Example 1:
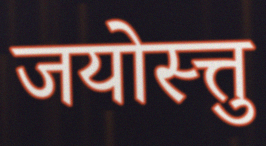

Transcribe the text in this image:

जयोस्त्तु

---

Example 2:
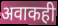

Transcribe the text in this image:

अवाकही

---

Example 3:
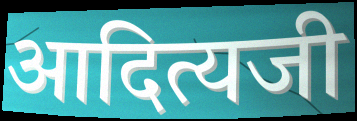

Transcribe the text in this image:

आदित्यजी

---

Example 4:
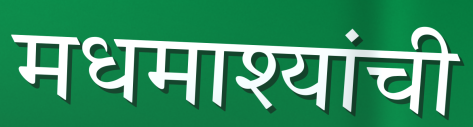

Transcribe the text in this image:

मधमाश्‍यांची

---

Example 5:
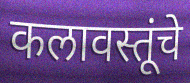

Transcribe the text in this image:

कलावस्तूंचे